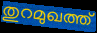
തുറമുഖത്ത്